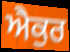
ਐਕੁਰ